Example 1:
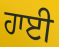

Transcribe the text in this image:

ਹਾਈ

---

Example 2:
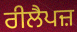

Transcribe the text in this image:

ਰੀਲੈਪਜ਼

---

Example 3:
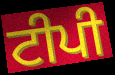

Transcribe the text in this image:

ਟੀਪੀ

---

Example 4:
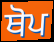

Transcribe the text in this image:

ਥੋਪ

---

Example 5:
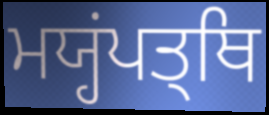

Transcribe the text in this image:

ਮਯ੍ਹਂਪਤ੍ਥਿ